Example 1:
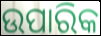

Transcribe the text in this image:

ଉପାରିକ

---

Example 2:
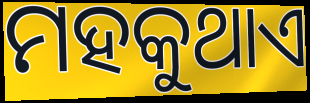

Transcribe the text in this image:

ମହକୁଥାଏ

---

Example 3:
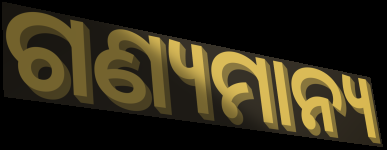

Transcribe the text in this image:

ଗଣ୍ୟମାନ୍ୟ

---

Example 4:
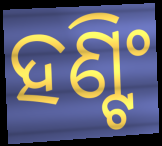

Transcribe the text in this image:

ହଣ୍ଟିଂ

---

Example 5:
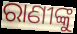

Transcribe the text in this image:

ରାଣୀଙ୍କୁ